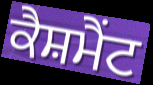
ਕੈਸ਼ਮੈਂਟ